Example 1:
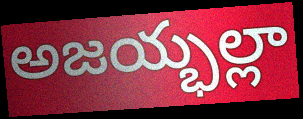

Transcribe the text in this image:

అజయ్భల్లా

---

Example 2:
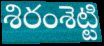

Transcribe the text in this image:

శిరంశెట్టి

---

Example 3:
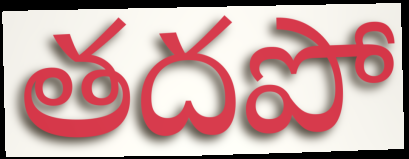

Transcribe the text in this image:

తదపో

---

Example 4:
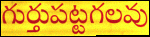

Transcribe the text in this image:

గుర్తుపట్టగలవు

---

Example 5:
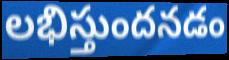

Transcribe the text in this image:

లభిస్తుందనడం